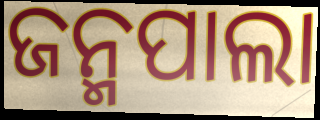
ଜନ୍ମପାଲା